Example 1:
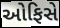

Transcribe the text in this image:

ઓફિસે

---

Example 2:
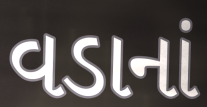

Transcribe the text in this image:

વડાનાં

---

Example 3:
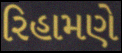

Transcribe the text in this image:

રિહામણે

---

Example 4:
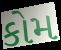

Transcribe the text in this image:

કોમ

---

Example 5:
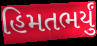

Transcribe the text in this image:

હિમતભર્યું